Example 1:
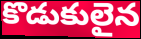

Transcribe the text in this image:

కొడుకులైన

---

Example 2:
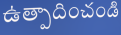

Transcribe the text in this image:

ఉత్పాదించండి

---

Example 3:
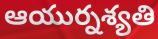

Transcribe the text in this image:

ఆయుర్నశ్యతి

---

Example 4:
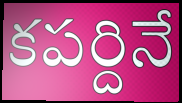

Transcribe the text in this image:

కపర్దినే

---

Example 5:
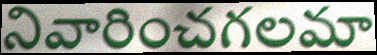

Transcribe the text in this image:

నివారించగలమా